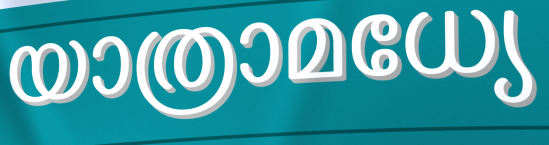
യാത്രാമധ്യേ